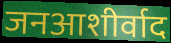
जनआशीर्वाद